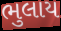
ભુલાય